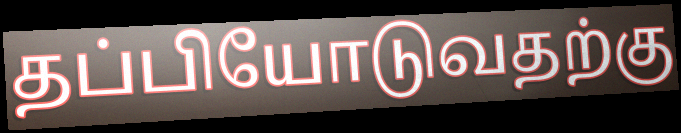
தப்பியோடுவதற்கு